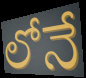
లోనే